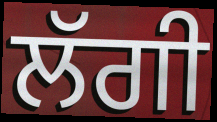
ਲੱਗੀ